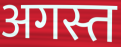
अगस्‍त